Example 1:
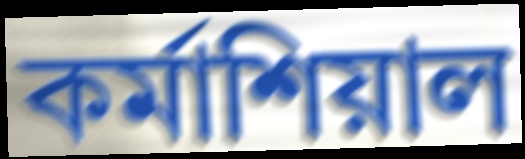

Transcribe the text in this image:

কর্মাশিয়াল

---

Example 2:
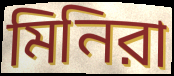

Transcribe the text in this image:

মিনিরা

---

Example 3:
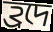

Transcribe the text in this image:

হ্রদে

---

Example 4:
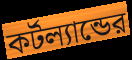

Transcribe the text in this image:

কর্টল্যান্ডের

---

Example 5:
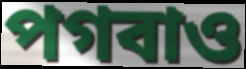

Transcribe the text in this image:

পগবাও